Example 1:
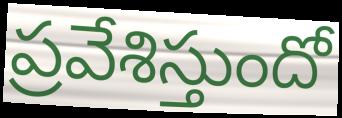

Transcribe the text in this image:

ప్రవేశిస్తుందో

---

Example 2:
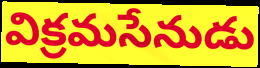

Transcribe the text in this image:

విక్రమసేనుడు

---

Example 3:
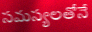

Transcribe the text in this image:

సమస్యలతోనే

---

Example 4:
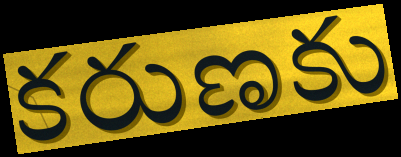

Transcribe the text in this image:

కరుణకు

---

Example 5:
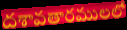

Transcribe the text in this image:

దశావతారములలో